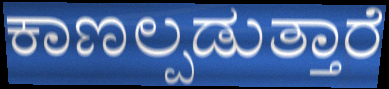
ಕಾಣಲ್ಪಡುತ್ತಾರೆ